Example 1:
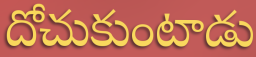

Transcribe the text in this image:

దోచుకుంటాడు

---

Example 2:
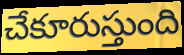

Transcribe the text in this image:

చేకూరుస్తుంది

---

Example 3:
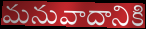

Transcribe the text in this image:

మనువాదానికి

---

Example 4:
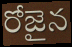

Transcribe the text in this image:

రోజైన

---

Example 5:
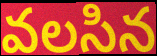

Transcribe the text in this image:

వలసిన